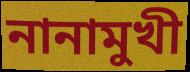
নানামুখী